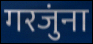
गरजुंना